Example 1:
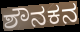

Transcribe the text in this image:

ಶೌನಕನ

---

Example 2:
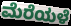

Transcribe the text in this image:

ಮೆರೆಯಳೆ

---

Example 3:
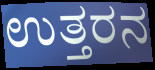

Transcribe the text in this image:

ಉತ್ತರನ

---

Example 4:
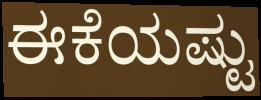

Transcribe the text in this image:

ಈಕೆಯಷ್ಟು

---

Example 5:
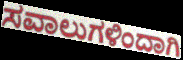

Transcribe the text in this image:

ಸವಾಲುಗಳಿಂದಾಗಿ